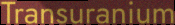
Transuranium